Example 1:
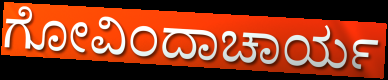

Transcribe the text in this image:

ಗೋವಿಂದಾಚಾರ್ಯ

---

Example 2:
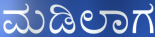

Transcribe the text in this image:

ಮಡಿಲಾಗ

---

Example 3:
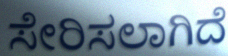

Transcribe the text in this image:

ಸೇರಿಸಲಾಗಿದೆ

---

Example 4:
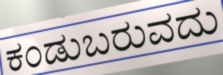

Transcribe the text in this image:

ಕಂಡುಬರುವದು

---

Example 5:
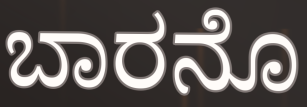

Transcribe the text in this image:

ಬಾರನೊ